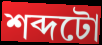
শব্দটো